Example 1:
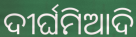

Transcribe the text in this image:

ଦୀର୍ଘମିଆଦି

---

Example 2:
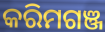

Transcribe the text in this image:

କରିମଗଞ୍ଜ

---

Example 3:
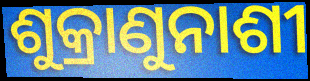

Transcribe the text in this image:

ଶୁକ୍ରାଣୁନାଶୀ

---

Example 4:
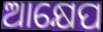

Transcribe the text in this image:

ଆକ୍ଷେପ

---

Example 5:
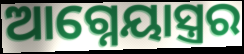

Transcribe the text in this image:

ଆଗ୍ନେୟାସ୍ତ୍ରର